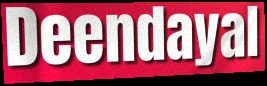
Deendayal